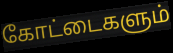
கோட்டைகளும்